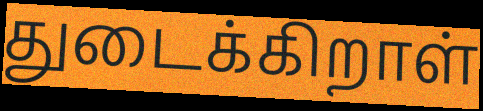
துடைக்கிறாள்